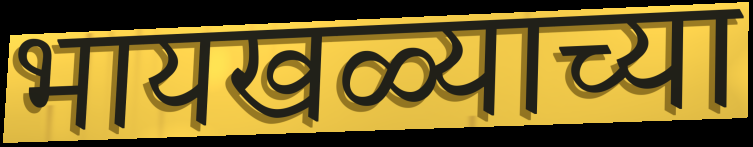
भायखळ्याच्या